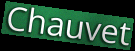
Chauvet